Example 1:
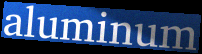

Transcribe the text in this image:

aluminum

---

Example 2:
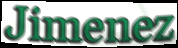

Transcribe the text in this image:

Jimenez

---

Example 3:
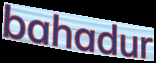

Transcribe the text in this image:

bahadur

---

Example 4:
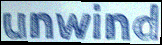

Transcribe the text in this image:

unwind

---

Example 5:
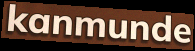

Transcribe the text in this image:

kanmunde